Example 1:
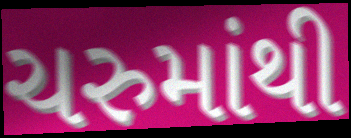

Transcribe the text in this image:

ચરુમાંથી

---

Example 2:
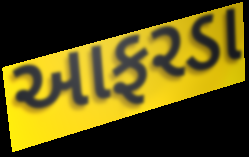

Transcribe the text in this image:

આફરડા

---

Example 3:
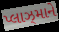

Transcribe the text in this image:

પ્લાઝ્માને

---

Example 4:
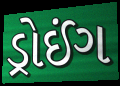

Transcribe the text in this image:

ડ્રોઈંગ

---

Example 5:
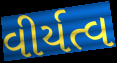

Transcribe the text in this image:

વીર્યત્વ